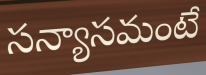
సన్యాసమంటే